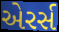
એરર્સ